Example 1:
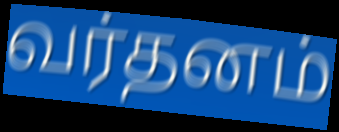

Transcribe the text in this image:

வர்தனம்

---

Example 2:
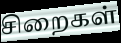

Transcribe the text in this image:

சிறைகள்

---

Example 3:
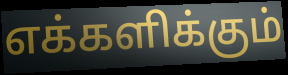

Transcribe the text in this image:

எக்களிக்கும்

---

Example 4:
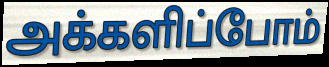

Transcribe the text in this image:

அக்களிப்போம்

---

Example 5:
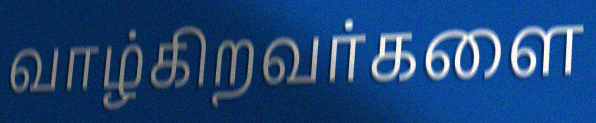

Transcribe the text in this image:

வாழ்கிறவர்களை